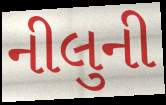
નીલુની